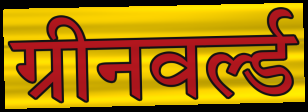
ग्रीनवर्ल्ड